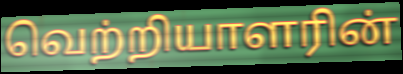
வெற்றியாளரின்